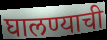
घालण्याची